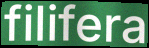
filifera